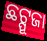
ଛଟ୍ପୂଜା